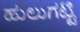
ಹುಲುಗಟ್ಟಿ